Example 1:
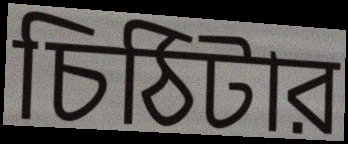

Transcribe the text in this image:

চিঠিটার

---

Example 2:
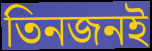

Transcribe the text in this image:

তিনজনই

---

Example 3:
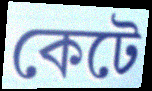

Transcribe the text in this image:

কেটে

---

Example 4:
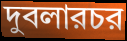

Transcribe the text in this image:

দুবলারচর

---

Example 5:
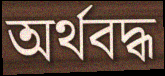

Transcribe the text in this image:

অর্থবদ্ধ